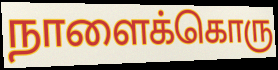
நாளைக்கொரு